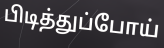
பிடித்துப்போய்